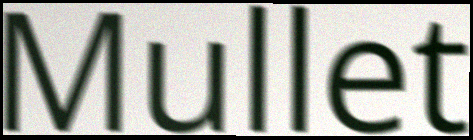
Mullet